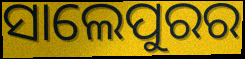
ସାଲେପୁରର